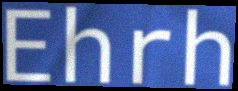
Ehrh